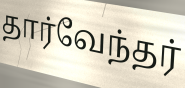
தார்வேந்தர்